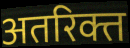
अतरिक्त